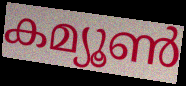
കമ്യൂൺ